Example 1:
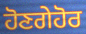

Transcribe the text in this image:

ਹੋਣਗੇਹੋਰ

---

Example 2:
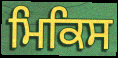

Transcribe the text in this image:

ਮਿਕਿਸ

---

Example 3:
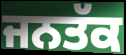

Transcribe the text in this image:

ਜਨਤੱਕ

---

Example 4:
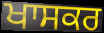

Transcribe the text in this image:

ਖਾਸਕਰ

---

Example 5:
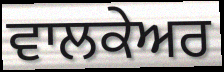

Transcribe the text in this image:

ਵਾਲਕੇਅਰ